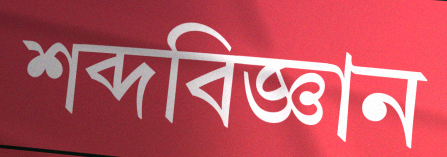
শব্দবিজ্ঞান